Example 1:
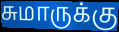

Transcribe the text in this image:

சுமாருக்கு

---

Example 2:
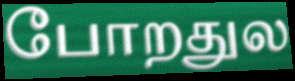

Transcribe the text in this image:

போறதுல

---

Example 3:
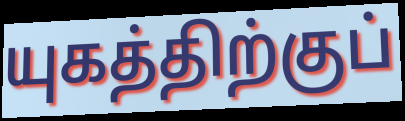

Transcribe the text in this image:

யுகத்திற்குப்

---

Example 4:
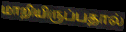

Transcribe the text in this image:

மாறியிருப்பதால்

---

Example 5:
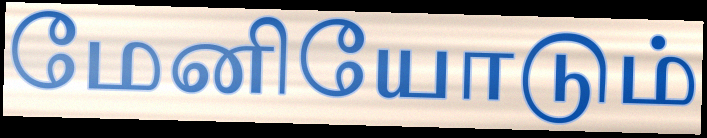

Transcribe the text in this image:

மேனியோடும்